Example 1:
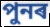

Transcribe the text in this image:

পুনৰ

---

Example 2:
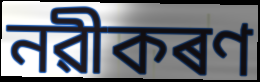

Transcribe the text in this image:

নৱীকৰণ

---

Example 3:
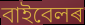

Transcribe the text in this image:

বাইবেলৰ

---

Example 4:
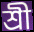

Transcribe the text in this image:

শ্ৰী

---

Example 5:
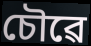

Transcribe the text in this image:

চৌৱে